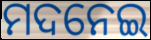
ମଦନେଇ